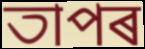
তাপৰ